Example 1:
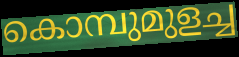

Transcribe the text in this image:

കൊമ്പുമുളച്ച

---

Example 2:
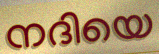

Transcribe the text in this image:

നദിയെ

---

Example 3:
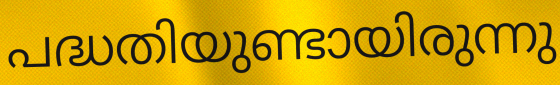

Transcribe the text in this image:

പദ്ധതിയുണ്ടായിരുന്നു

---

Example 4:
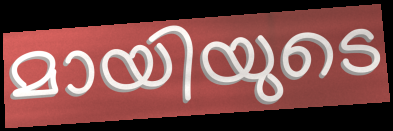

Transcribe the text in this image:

മായിയുടെ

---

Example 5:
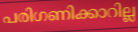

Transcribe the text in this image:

പരിഗണിക്കാറില്ല